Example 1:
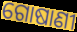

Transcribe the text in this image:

ଗୋଷାଣୀ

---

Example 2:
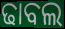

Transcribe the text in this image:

ଢାବଲ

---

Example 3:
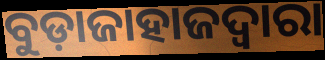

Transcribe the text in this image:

ବୁଡ଼ାଜାହାଜଦ୍ୱାରା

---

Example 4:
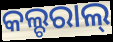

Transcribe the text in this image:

କଲ୍ଚରାଲ୍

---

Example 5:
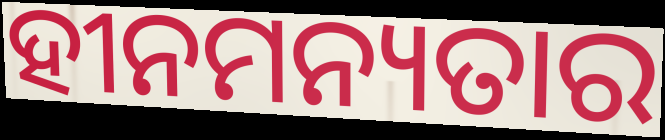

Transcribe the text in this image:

ହୀନମନ୍ୟତାର